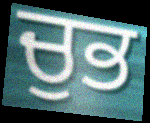
ਚੁਭ